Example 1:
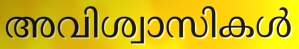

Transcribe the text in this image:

അവിശ്വാസികൾ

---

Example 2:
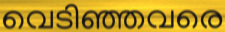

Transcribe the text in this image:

വെടിഞ്ഞവരെ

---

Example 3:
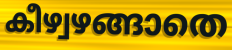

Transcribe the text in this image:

കീഴ്വഴങ്ങാതെ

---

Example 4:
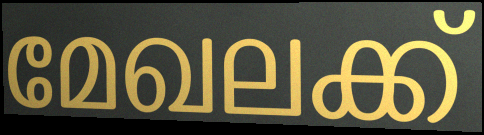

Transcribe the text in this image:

മേഖലക്ക്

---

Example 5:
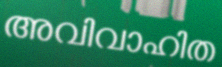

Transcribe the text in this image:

അവിവാഹിത